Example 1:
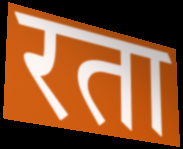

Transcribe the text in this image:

रता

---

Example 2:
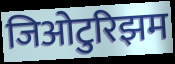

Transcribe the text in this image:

जिओटुरिझम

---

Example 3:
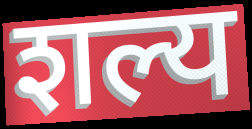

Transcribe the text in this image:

शल्य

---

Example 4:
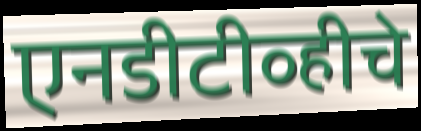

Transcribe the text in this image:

एनडीटीव्हीचे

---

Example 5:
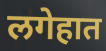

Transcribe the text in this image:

लगेहात